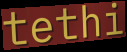
tethi